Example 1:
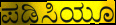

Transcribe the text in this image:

ಪಡಿಸಿಯೂ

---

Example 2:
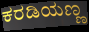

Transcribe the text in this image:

ಕರಡಿಯಣ್ಣ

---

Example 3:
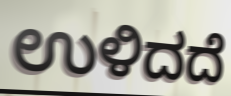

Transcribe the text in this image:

ಉಳಿದದೆ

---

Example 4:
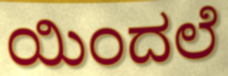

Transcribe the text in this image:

ಯಿಂದಲೆ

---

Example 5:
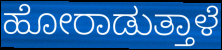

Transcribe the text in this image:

ಹೋರಾಡುತ್ತಾಳೆ